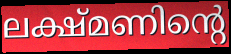
ലക്ഷ്മണിന്റെ